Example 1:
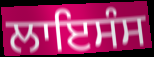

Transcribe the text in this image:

ਲਾਇਸੰਸ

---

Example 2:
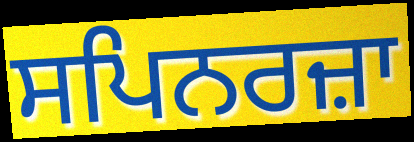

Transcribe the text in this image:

ਸਪਿਨਰਜ਼ਾ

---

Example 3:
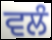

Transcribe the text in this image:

ਵਲੰ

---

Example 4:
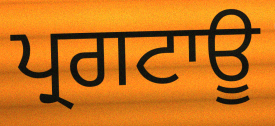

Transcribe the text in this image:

ਪ੍ਰਗਟਾਊ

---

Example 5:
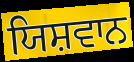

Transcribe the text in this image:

ਯਿਸ਼ਵਾਨ